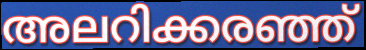
അലറിക്കരഞ്ഞ്